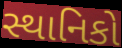
સ્થાનિકો